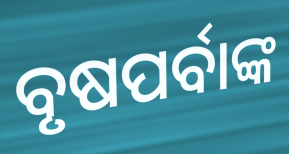
ବୃଷପର୍ବାଙ୍କ